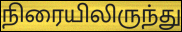
நிரையிலிருந்து